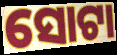
ସୋଟା